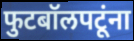
फुटबॉलपटूंना